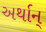
અર્થાન્